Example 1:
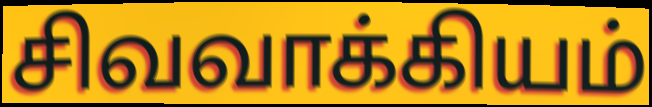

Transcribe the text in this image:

சிவவாக்கியம்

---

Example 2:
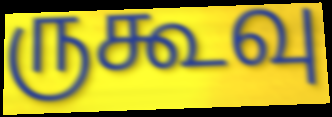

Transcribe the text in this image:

ருகூவு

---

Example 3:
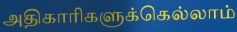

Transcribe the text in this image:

அதிகாரிகளுக்கெல்லாம்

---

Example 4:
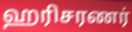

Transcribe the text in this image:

ஹரிசரணர்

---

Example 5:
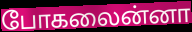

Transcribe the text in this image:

போகலைன்னா